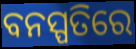
ବନସ୍ପତିରେ